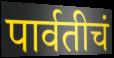
पार्वतीचं